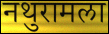
नथुरामला